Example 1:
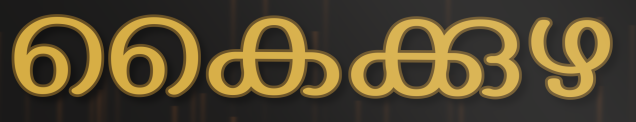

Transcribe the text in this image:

കൈക്കുഴ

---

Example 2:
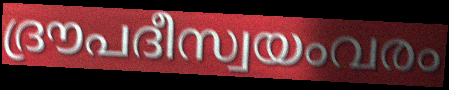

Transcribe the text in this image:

ദ്രൗപദീസ്വയംവരം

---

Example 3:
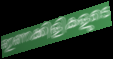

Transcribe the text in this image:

ഇണക്കിളികളുടെ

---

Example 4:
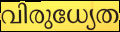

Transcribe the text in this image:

വിരുധ്യേത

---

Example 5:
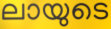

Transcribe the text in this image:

ലായുടെ